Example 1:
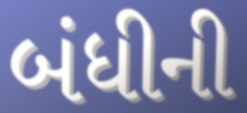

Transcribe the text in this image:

બંધીની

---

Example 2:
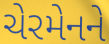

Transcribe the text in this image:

ચેરમેનને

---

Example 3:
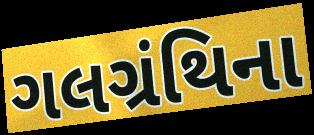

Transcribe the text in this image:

ગલગ્રંથિના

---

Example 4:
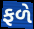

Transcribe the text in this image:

ફળે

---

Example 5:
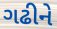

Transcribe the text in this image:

ગઢીને